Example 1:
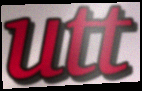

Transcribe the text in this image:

utt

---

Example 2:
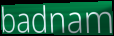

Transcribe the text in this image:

badnam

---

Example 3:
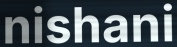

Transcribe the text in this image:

nishani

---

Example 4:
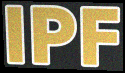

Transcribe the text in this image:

IPF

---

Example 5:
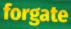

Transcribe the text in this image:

forgate